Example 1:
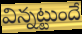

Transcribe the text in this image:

విన్నట్టుందే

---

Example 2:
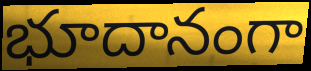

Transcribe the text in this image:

భూదానంగా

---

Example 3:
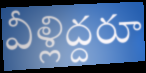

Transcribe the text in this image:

వీళ్లిద్దరూ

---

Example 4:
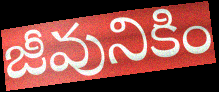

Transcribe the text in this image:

జీవునికిం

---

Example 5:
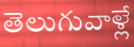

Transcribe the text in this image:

తెలుగువాళ్లే